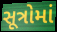
સૂત્રોમાં